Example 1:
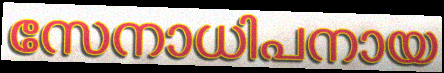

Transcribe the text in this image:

സേനാധിപനായ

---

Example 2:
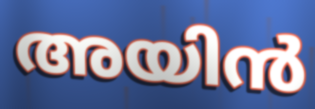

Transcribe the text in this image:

അയിൻ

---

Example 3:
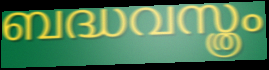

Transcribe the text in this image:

ബദ്ധവസ്ത്രം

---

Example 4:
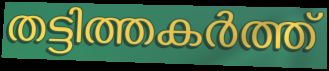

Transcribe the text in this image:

തട്ടിത്തകർത്ത്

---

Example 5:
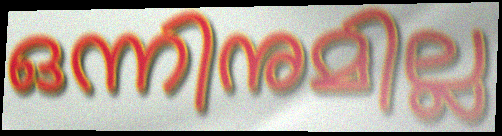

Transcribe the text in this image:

ഒന്നിനുമില്ല